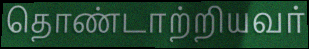
தொண்டாற்றியவர்